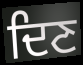
ਦਿਣ